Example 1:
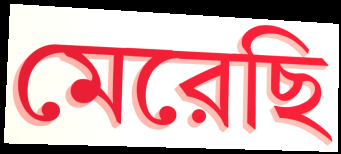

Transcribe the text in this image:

মেরেছি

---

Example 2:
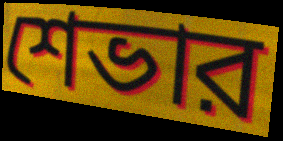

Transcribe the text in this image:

শেভার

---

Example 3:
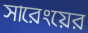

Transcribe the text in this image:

সারেংয়ের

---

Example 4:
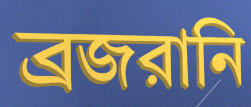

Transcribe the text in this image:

ব্রজরানি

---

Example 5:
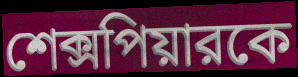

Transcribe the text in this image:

শেক্সপিয়ারকে